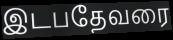
இடபதேவரை